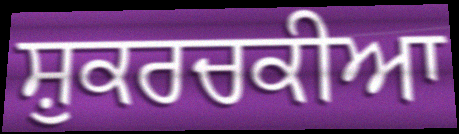
ਸ਼ੁਕਰਚਕੀਆ